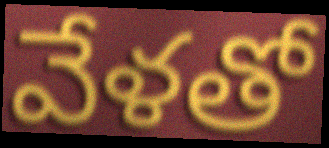
వేళతో